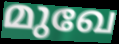
മുഖേ